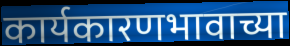
कार्यकारणभावाच्या